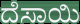
ದೆಸಾಯಿ